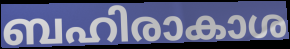
ബഹിരാകാശ